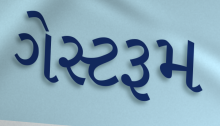
ગેસ્ટરૂમ